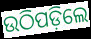
ଉଠିପଡ଼ିଲେ